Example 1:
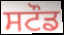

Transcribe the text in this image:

ਸਟੌਡ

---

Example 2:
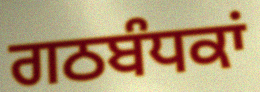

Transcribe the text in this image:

ਗਠਬੰਧਕਾਂ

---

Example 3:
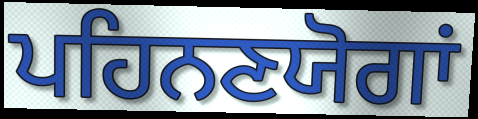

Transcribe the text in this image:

ਪਹਿਨਣਯੋਗਾਂ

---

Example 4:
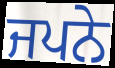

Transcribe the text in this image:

ਜਪਨੇ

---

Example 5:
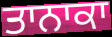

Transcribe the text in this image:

ਤਾਨਾਕਾ